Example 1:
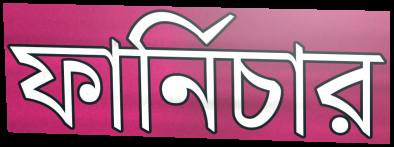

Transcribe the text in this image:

ফার্নিচার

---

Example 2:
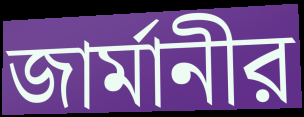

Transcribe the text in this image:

জার্মানীর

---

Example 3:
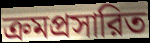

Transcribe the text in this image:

ক্রমপ্রসারিত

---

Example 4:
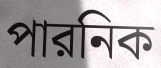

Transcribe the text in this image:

পারনিক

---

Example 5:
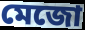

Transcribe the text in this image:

মেজো